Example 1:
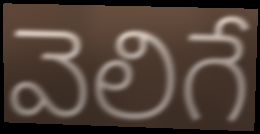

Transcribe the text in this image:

వెలిగే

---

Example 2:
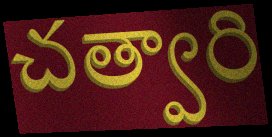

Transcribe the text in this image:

చత్వారి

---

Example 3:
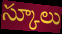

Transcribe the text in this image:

స్కూలు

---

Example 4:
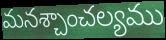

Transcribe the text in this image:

మనశ్చాంచల్యము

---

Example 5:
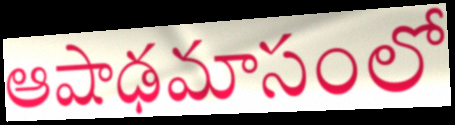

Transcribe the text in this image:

ఆషాఢమాసంలో